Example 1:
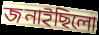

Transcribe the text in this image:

জনাইছিলো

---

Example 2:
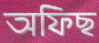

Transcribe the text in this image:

অফিছ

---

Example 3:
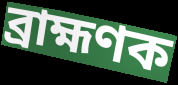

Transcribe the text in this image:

ব্ৰাহ্মণক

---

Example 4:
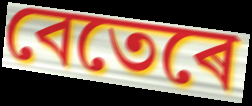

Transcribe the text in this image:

বেতেৰে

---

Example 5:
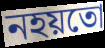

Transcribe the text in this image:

নহয়তো